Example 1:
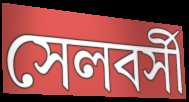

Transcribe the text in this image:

সেলবর্সী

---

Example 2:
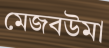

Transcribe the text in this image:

মেজবউমা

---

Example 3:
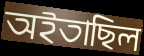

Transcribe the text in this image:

অইতাছিল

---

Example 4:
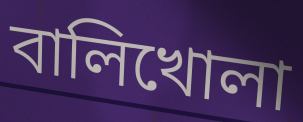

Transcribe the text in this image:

বালিখোলা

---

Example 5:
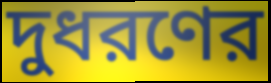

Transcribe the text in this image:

দুধরণের